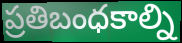
ప్రతిబంధకాల్ని